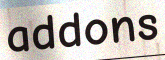
addons